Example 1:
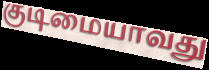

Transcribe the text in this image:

குடிமையாவது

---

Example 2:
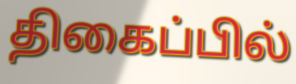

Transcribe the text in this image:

திகைப்பில்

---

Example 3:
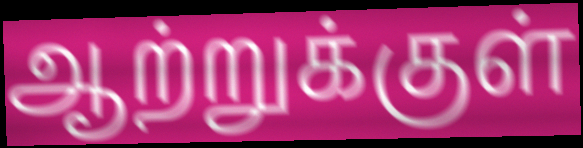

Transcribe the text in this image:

ஆற்றுக்குள்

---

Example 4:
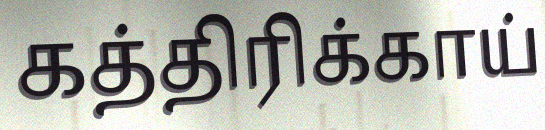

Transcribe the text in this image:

கத்திரிக்காய்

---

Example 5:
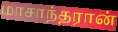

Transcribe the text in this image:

மாசாந்தரான்